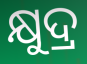
କ୍ଷୁଦ୍ର